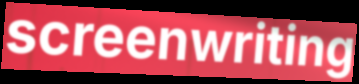
screenwriting